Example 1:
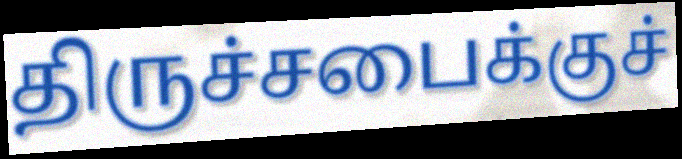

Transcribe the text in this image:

திருச்சபைக்குச்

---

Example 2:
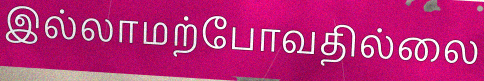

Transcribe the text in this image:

இல்லாமற்போவதில்லை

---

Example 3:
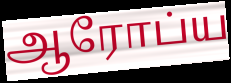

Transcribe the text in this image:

ஆரோப்ய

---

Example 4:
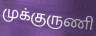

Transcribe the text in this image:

முக்குருணி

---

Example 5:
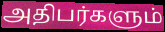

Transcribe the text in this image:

அதிபர்களும்